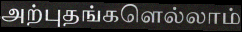
அற்புதங்களெல்லாம்